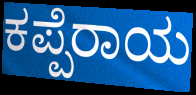
ಕಪ್ಪೆರಾಯ